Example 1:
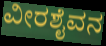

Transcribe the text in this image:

ವೀರಶೈವನ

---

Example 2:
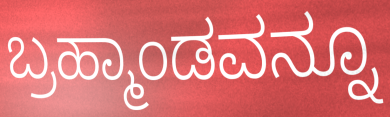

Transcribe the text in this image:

ಬ್ರಹ್ಮಾಂಡವನ್ನೂ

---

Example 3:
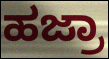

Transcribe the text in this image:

ಹಜ್ರಾ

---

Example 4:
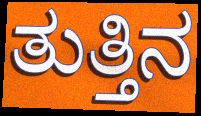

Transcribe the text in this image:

ತುತ್ತಿನ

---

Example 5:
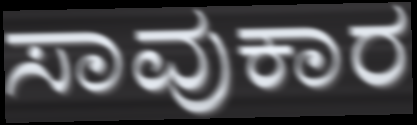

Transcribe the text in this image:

ಸಾವುಕಾರ